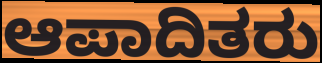
ಆಪಾದಿತರು